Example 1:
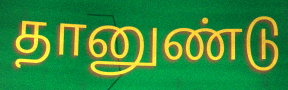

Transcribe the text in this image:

தானுண்டு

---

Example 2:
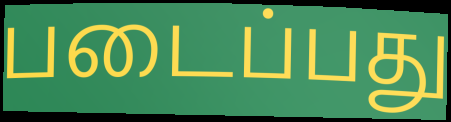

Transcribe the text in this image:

படைப்பது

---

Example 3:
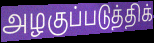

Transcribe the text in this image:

அழகுப்படுத்திக்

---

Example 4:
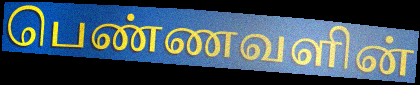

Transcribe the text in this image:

பெண்ணவளின்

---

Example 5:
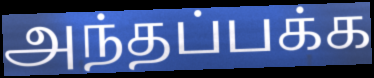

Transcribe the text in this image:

அந்தப்பக்க